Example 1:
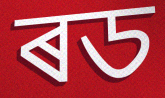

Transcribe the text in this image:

ৰড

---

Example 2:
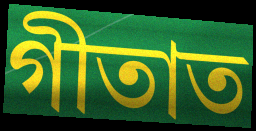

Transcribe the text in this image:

গীতাত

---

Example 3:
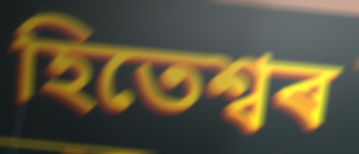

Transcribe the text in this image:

হিতেশ্বৰ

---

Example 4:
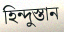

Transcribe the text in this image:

হিন্দুস্তান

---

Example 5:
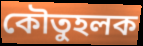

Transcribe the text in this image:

কৌতুহলক